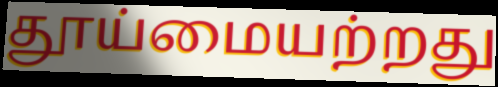
தூய்மையற்றது